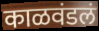
काळवंडलं